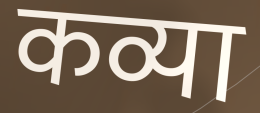
कव्या